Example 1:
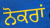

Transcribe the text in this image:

ਨੋਕਰਾਂ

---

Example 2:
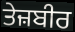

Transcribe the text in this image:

ਤੇਜ਼ਬੀਰ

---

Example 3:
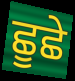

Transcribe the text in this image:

ਛੂਛੇ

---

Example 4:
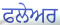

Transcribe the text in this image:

ਫਲੇਅਰ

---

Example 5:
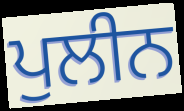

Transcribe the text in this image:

ਪੁਲੀਨ